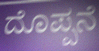
ದೊಪ್ಪನೆ